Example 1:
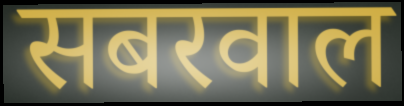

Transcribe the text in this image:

सबरवाल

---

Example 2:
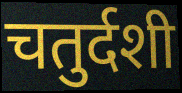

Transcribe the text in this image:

चतुर्दशी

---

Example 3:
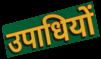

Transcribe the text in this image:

उपाधियों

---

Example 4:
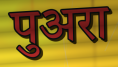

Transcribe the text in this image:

पुअरा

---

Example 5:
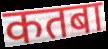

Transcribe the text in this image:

कतबा